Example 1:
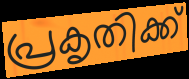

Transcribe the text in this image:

പ്രകൃതിക്ക്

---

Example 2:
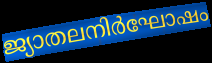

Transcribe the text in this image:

ജ്യാതലനിർഘോഷം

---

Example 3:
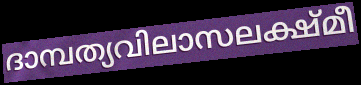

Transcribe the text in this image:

ദാമ്പത്യവിലാസലക്ഷ്മീ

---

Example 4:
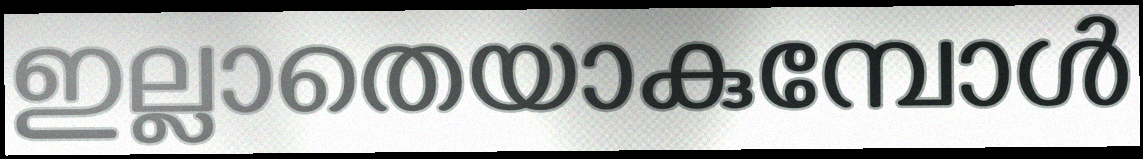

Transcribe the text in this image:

ഇല്ലാതെയാകുമ്പോൾ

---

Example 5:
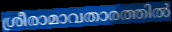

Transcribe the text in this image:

ശ്രീരാമാവതാരത്തിൽ